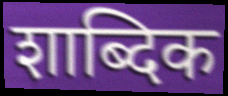
शाब्दिक